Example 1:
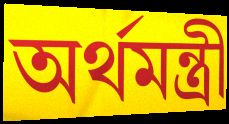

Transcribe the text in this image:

অর্থমন্ত্রী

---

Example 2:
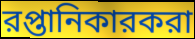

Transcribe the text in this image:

রপ্তানিকারকরা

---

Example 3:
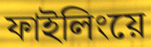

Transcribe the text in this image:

ফাইলিংয়ে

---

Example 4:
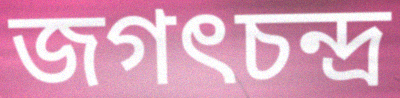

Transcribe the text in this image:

জগৎচন্দ্র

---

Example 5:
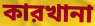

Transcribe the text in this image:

কারখানা